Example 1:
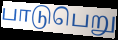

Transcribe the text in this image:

பாடுபெறு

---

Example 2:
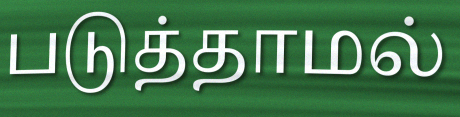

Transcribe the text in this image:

படுத்தாமல்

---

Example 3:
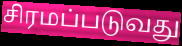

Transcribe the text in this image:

சிரமப்படுவது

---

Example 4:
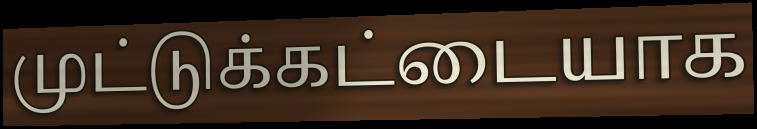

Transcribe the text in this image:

முட்டுக்கட்டையாக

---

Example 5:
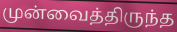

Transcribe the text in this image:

முன்வைத்திருந்த